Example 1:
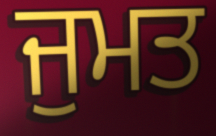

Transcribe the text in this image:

ਜੁਮਤ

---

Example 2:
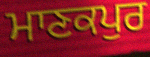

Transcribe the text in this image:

ਮਾਣਕਪੁਰ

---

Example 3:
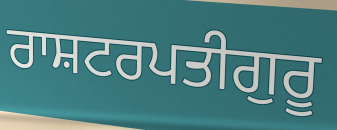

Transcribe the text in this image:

ਰਾਸ਼ਟਰਪਤੀਗੁਰੂ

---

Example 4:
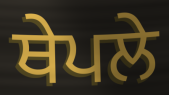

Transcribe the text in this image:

ਥੇਪਲੇ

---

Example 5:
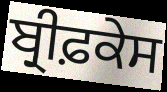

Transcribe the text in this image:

ਬ੍ਰੀਫ਼ਕੇਸ